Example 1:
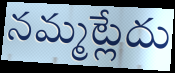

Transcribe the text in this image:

నమ్మట్లేదు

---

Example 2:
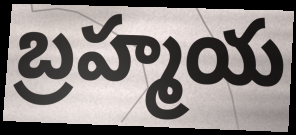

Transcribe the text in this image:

బ్రహ్మయ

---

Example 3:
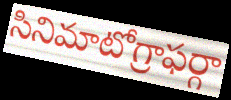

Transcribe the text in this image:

సినిమాటోగ్రాఫర్గా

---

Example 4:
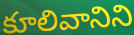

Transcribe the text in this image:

కూలివానిని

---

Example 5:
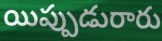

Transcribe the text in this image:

యిప్పుడురారు